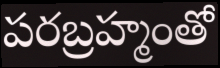
పరబ్రహ్మంతో